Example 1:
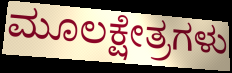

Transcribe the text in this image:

ಮೂಲಕ್ಷೇತ್ರಗಳು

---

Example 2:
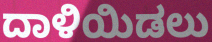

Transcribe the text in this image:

ದಾಳಿಯಿಡಲು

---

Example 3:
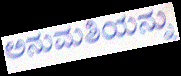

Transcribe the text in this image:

ಅನುಮತಿಯನ್ನು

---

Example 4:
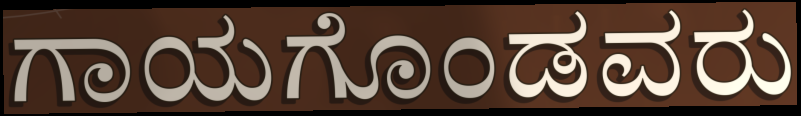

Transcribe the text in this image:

ಗಾಯಗೊಂಡವರು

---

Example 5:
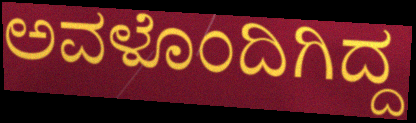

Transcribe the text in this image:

ಅವಳೊಂದಿಗಿದ್ದ